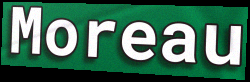
Moreau